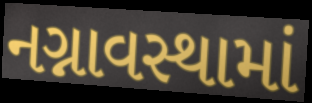
નગ્નાવસ્થામાં